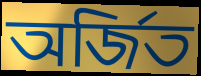
অর্জিত